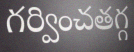
గర్వించతగ్గ